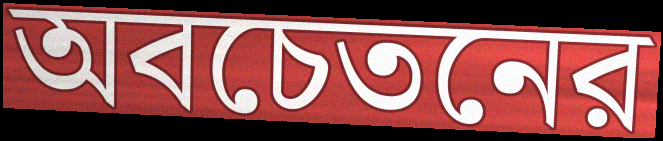
অবচেতনের